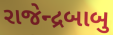
રાજેન્દ્રબાબુ